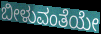
ಬೀಳುವಂತೆಯೇ